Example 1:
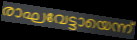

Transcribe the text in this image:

രാഘവേട്ടായെന്ന്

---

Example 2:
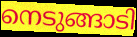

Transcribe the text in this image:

നെടുങ്ങാടി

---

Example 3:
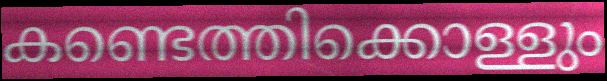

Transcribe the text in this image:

കണ്ടെത്തിക്കൊള്ളും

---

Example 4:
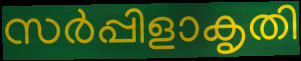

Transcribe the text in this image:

സർപ്പിളാകൃതി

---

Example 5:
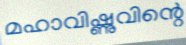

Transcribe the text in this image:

മഹാവിഷ്ണുവിന്റെ